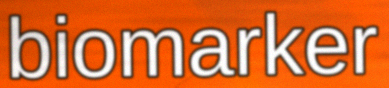
biomarker